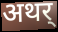
अथर्